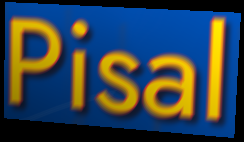
Pisal